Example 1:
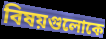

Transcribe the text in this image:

বিষয়গুলোকে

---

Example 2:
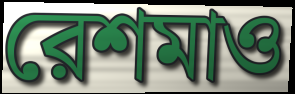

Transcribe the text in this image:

রেশমাও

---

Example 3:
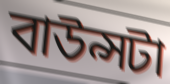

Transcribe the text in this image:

বাউন্সটা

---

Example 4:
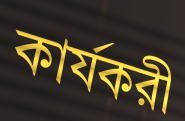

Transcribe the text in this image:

কার্যকরী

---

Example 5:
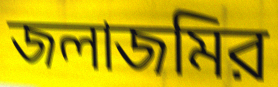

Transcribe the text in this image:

জলাজমির